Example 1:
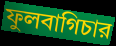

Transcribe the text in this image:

ফুলবাগিচার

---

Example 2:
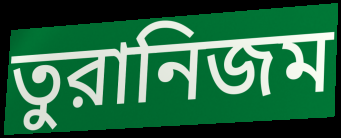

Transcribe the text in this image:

তুরানিজম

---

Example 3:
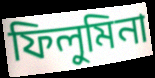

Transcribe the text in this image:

ফিলুমিনা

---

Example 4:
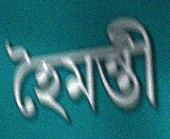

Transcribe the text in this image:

হৈমন্তী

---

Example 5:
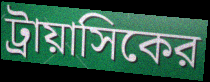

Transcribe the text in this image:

ট্রায়াসিকের